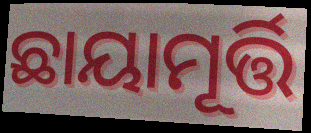
ଛାୟାମୂର୍ତ୍ତି